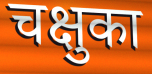
चक्षुका